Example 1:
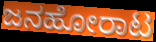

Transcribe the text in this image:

ಜನಹೋರಾಟ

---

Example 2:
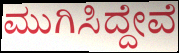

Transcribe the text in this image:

ಮುಗಿಸಿದ್ದೇವೆ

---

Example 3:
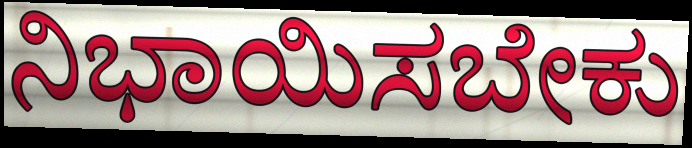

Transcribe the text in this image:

ನಿಭಾಯಿಸಬೇಕು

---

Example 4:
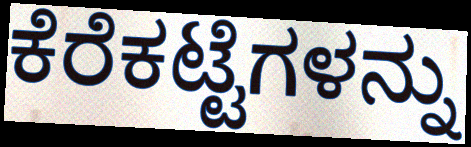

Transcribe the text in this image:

ಕೆರೆಕಟ್ಟೆಗಳನ್ನು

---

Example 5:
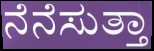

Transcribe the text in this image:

ನೆನೆಸುತ್ತಾ